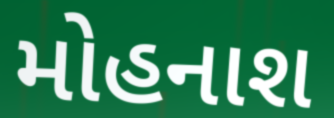
મોહનાશ